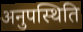
अनुपस्थिति